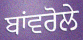
ਬਾਂਵਰੋਲੇ